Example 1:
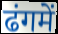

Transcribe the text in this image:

ढंगमें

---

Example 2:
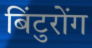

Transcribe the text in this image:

बिंटुरोंग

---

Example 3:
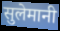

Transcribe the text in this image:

सुलेमानी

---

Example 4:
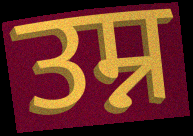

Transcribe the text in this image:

उम्न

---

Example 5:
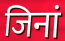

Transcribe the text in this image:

जिनां